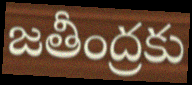
జతీంద్రకు